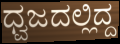
ಧ್ವಜದಲ್ಲಿದ್ದ